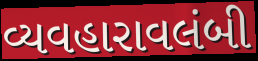
વ્યવહારાવલંબી